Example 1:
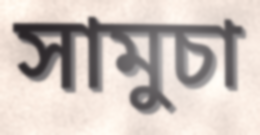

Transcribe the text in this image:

সামুচা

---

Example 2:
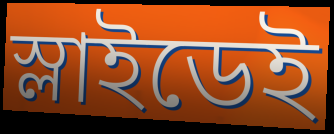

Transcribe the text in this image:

স্লাইডেই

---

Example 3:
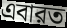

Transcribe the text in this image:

এবারত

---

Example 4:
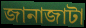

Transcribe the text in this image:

জানাজাটা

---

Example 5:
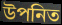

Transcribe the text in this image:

উপনিত